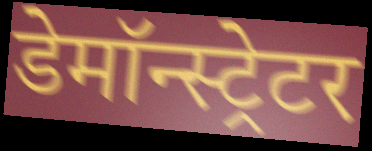
डेमॉन्स्ट्रेटर